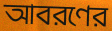
আবরণের